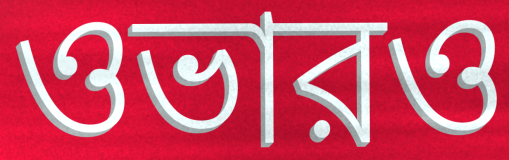
ওভারও